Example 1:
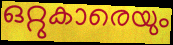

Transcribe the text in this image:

ഒറ്റുകാരെയും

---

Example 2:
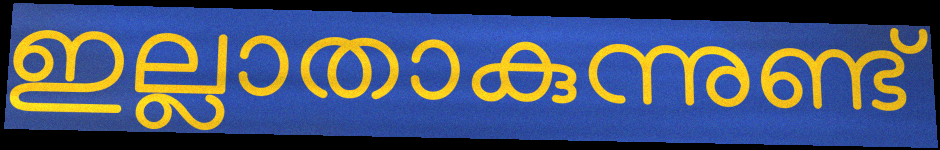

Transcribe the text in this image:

ഇല്ലാതാകുന്നുണ്ട്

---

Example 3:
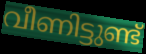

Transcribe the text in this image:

വീണിട്ടുണ്ട്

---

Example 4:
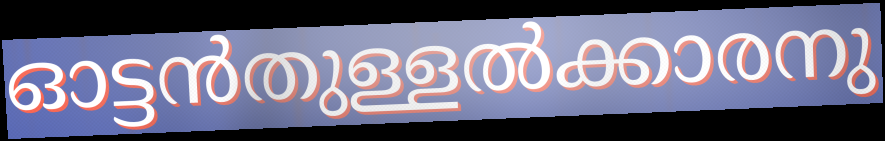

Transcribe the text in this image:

ഓട്ടൻതുള്ളൽക്കാരനു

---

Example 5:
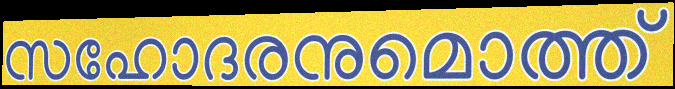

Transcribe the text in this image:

സഹോദരനുമൊത്ത്